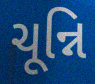
ચૂન્નિ